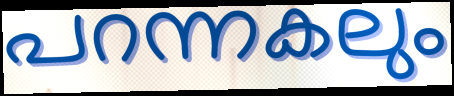
പറന്നകലും